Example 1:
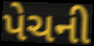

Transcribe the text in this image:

પેચની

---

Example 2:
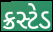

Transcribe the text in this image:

ક્રસ્ટેડ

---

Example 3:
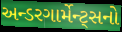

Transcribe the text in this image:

અન્ડરગાર્મેન્ટ્સનો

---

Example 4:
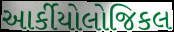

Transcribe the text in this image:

આર્કીયોલોજિકલ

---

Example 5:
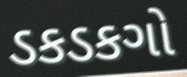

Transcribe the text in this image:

ડકડકગો